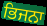
ਭਿਜਨਾ